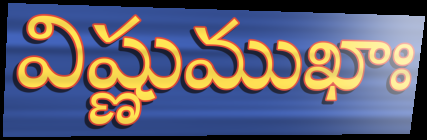
విష్ణుముఖాః